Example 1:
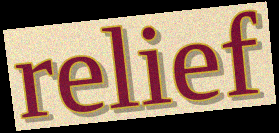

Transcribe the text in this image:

relief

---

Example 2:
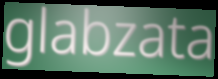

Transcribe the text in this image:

glabzata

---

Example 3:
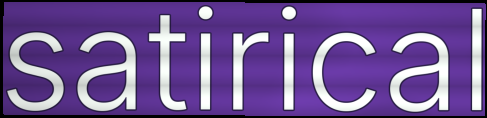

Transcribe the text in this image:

satirical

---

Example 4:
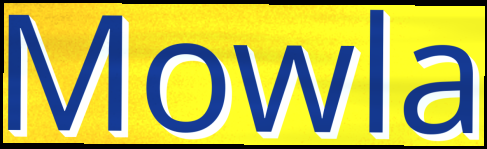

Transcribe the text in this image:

Mowla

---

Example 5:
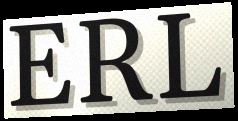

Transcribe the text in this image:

ERL